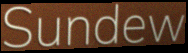
Sundew